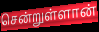
சென்றுள்ளான்